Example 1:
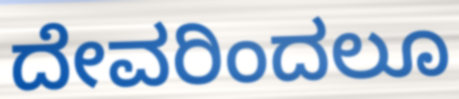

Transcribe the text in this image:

ದೇವರಿಂದಲೂ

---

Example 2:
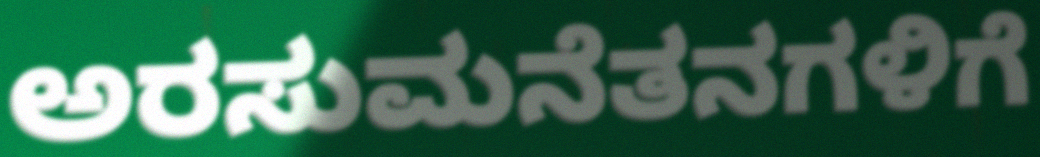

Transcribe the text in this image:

ಅರಸುಮನೆತನಗಳಿಗೆ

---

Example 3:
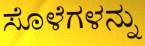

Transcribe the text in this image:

ಸೊಳೆಗಳನ್ನು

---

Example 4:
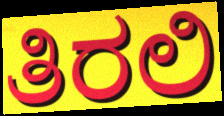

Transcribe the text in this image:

ತಿರಲಿ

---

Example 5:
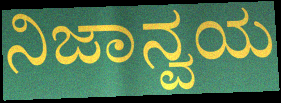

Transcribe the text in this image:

ನಿಜಾನ್ವಯ